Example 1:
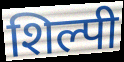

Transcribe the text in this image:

शिल्पी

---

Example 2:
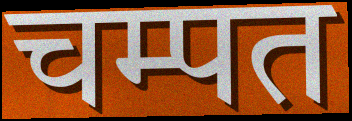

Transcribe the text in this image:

चम्पत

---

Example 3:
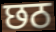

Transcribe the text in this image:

छठ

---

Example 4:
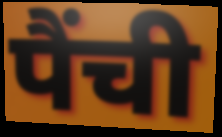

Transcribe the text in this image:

पैंची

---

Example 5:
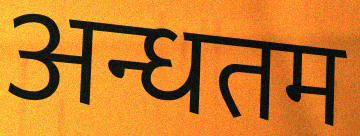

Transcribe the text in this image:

अन्धतम